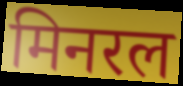
मिनरल